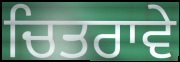
ਚਿਤਰਾਵੇ